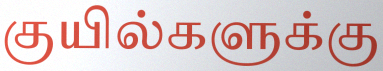
குயில்களுக்கு